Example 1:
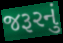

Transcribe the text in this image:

જરૂરનું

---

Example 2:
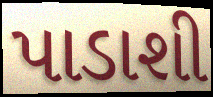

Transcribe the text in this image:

પાડાશી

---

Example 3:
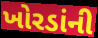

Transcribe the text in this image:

ખોરડાંની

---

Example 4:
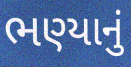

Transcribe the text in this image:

ભણ્યાનું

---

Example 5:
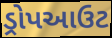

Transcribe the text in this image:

ડ્રોપઆઉટ